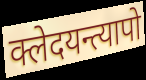
क्लेदयन्त्यापो